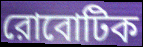
রোবোটিক